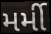
મર્મી